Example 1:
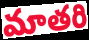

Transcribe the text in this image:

మాతరి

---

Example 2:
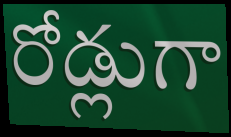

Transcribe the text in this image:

రోడ్లుగా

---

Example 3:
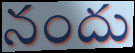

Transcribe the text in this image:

నందు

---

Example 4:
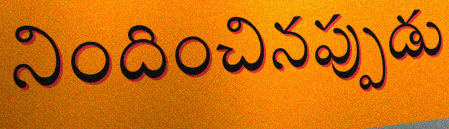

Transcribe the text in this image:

నిందించినప్పుడు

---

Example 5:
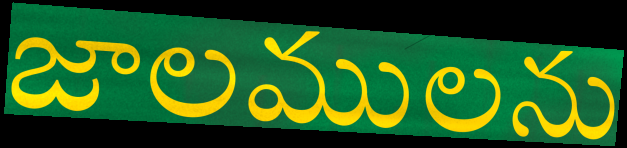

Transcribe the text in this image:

జాలములను